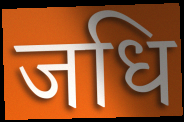
जधि